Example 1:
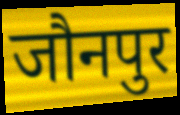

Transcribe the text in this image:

जौनपुर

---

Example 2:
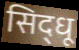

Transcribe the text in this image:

सिद्धू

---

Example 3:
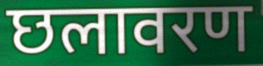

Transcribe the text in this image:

छलावरण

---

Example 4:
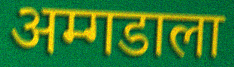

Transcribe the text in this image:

अम्गडाला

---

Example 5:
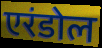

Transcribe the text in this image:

एरंडोल